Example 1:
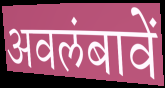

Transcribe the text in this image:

अवलंबावें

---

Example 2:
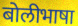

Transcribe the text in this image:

बोलीभाषा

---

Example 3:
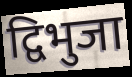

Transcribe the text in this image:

द्विभुजा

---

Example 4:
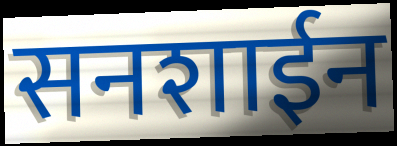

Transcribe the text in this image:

सनशाईन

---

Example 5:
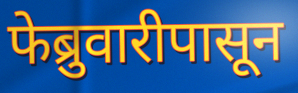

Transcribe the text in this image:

फेब्रुवारीपासून